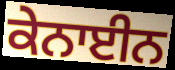
ਕੇਨਾਈਨ